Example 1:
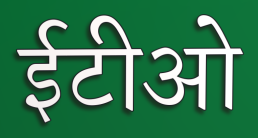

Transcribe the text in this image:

ईटीओ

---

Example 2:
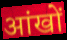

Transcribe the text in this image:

आंखों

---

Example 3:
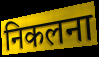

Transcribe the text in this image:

निकलना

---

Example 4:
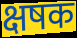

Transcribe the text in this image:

क्षषक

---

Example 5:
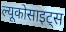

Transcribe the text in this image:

ल्यूकोसाइट्स